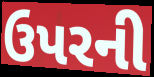
ઉપરની